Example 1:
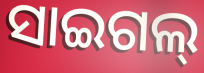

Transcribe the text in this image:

ସାଇଗଲ୍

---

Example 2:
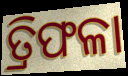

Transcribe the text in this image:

ତ୍ରିଫଳା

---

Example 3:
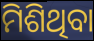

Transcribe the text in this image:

ମିଶିଥିବା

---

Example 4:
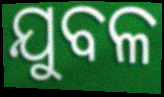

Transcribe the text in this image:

ଯୁବଳ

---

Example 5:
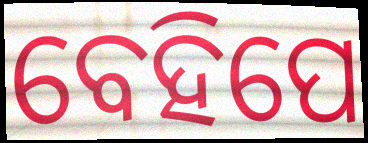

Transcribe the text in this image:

ବେହିପେ